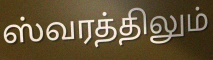
ஸ்வரத்திலும்